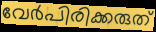
വേർപിരിക്കരുത്